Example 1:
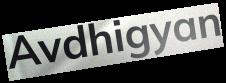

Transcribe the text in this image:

Avdhigyan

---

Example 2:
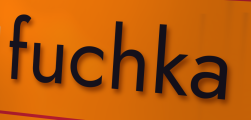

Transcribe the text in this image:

fuchka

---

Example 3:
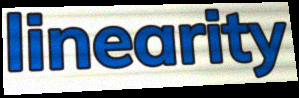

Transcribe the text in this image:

linearity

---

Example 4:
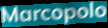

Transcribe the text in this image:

Marcopolo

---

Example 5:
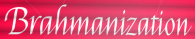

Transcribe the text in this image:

Brahmanization